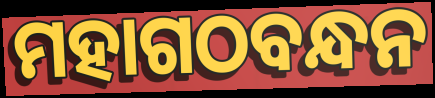
ମହାଗଠବନ୍ଧନ